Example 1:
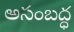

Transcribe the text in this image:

అసంబద్ధ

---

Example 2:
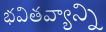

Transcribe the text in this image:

భవితవ్యాన్ని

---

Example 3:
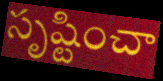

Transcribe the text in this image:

సృష్టించా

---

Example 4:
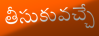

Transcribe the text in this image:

తీసుకువచ్చే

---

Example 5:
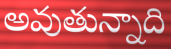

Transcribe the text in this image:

అవుతున్నాది